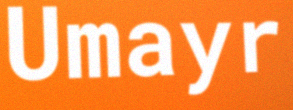
Umayr